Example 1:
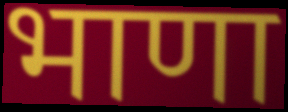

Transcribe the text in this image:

भाणा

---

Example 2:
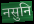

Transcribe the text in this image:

नसुनि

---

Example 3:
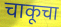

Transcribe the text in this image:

चाकूचा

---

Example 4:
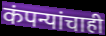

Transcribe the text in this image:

कंपन्यांचाही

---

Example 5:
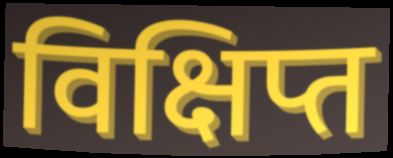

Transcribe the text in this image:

विक्षिप्त